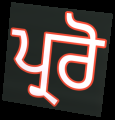
ਪ੍ਰਰੋ